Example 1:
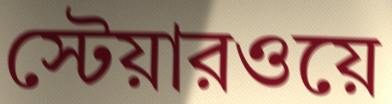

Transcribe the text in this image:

স্টেয়ারওয়ে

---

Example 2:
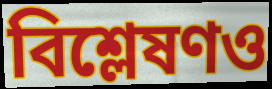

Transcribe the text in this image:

বিশ্লেষণও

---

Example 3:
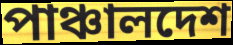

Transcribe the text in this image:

পাঞ্চালদেশ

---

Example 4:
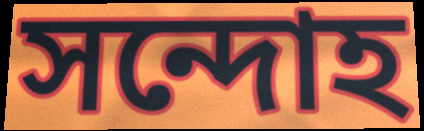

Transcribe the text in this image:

সন্দোহ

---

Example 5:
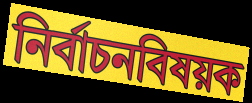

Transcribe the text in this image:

নির্বাচনবিষয়ক